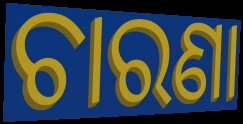
ଚାରଣା